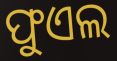
ଫୁଏଲ